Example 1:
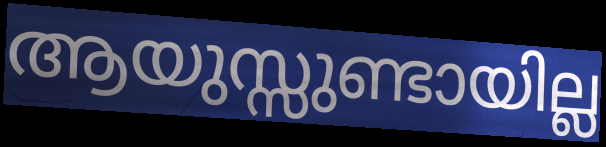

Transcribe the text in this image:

ആയുസ്സുണ്ടായില്ല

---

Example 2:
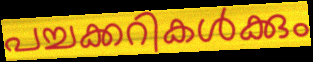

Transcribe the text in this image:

പച്ചക്കറികൾക്കും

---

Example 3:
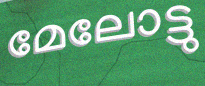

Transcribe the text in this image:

മേലോട്ടു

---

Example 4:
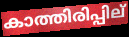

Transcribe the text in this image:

കാത്തിരിപ്പില്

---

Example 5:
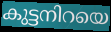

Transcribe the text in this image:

കുട്ടനിറയെ